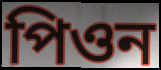
পিওন